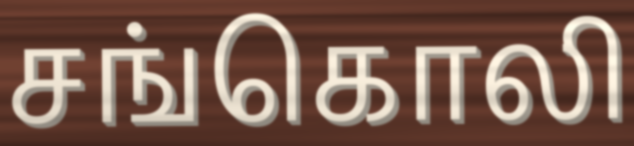
சங்கொலி